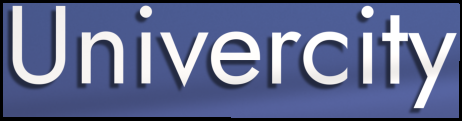
Univercity